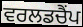
ਵਰਲਡਚੈਂਪ